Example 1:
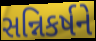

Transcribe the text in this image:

સન્નિકર્ષને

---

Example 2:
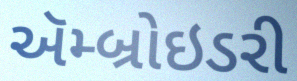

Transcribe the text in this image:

ઍમ્બ્રોઇડરી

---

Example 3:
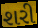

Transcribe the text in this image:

શરી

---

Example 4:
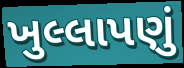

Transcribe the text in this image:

ખુલ્લાપણું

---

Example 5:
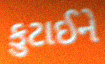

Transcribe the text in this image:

કુટાઈને